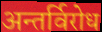
अन्तर्विरोध